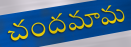
చందమామ